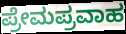
ಪ್ರೇಮಪ್ರವಾಹ